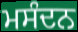
ਮਸੰਦਨ